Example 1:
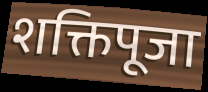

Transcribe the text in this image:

शक्तिपूजा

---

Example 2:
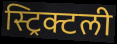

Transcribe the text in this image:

स्ट्रिक्टली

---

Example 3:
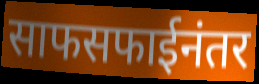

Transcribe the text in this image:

साफसफाईनंतर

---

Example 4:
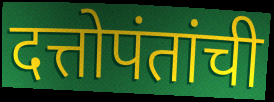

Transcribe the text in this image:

दत्तोपंतांची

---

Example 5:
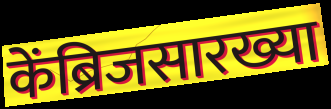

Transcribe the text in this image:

केंब्रिजसारख्या